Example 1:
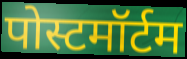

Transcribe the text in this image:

पोस्टमॉर्टम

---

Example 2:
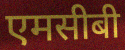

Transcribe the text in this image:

एमसीबी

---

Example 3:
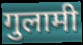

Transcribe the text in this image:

गुलामी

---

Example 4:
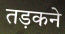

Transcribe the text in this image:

तड़कने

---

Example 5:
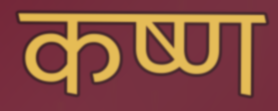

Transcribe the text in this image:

कष्ण